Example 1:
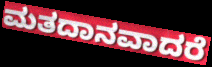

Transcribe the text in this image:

ಮತದಾನವಾದರೆ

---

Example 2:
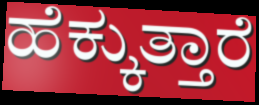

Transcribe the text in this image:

ಹೆಕ್ಕುತ್ತಾರೆ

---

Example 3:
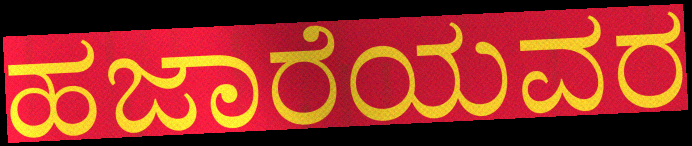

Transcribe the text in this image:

ಹಜಾರೆಯವರ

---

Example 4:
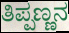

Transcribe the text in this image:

ತಿಪ್ಪಣ್ಣನ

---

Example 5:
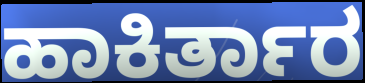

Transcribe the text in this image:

ಹಾಕಿರ್ತಾರ